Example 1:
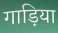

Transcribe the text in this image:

गाड़िया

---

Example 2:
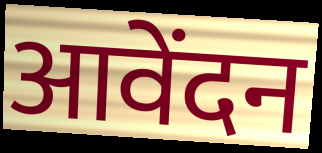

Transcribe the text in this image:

आवेंदन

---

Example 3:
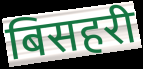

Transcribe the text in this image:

बिसहरी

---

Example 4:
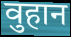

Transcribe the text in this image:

वुहान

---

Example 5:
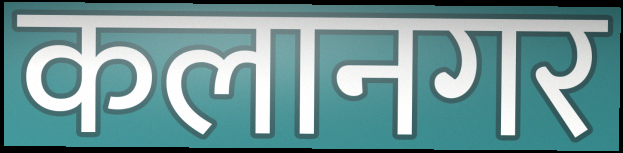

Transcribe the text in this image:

कलानगर